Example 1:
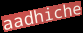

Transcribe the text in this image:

aadhiche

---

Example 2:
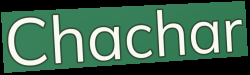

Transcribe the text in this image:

Chachar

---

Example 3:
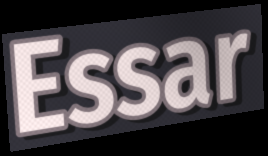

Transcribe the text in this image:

Essar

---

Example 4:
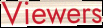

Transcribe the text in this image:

Viewers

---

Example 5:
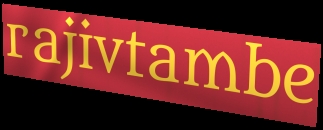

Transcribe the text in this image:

rajivtambe